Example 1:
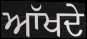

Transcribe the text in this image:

ਆੱਖਦੇ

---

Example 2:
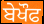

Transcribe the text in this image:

ਬੇਖੌਫ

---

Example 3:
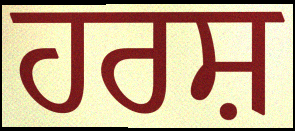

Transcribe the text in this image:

ਹਰਸ਼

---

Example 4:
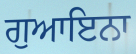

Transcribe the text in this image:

ਗੁਆਇਨਾ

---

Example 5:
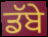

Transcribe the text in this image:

ਡੱਬੇ